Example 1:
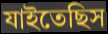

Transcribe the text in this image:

যাইতেছিস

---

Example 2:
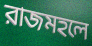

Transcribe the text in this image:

রাজমহলে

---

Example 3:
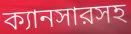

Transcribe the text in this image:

ক্যানসারসহ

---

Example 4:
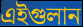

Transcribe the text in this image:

এইগুলান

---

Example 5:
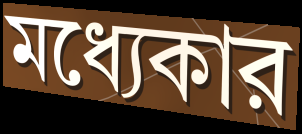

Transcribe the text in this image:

মধ্যেকার